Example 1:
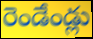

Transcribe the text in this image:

రెండేండ్లు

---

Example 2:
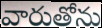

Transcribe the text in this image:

వారుతోను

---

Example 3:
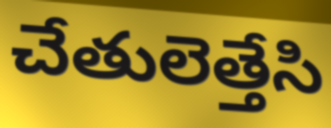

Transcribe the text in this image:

చేతులెత్తేసి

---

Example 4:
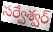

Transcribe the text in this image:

సర్వేశ్వర్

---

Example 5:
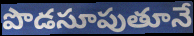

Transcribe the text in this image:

పొడసూపుతూనే